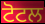
ਟੋਟਲ